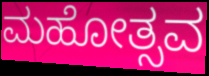
ಮಹೋತ್ಸವ